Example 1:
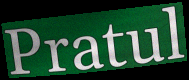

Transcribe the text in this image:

Pratul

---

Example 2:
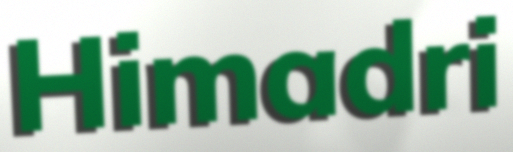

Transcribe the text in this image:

Himadri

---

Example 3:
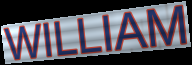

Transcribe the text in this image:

WILLIAM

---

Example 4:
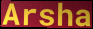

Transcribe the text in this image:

Arsha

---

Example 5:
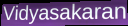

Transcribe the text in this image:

Vidyasakaran